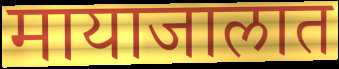
मायाजालात